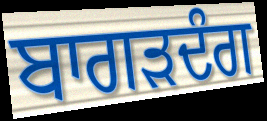
ਬਾਗੜਦੰਗ